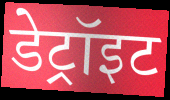
डेट्रॉइट